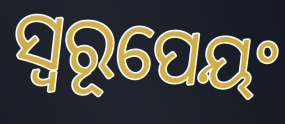
ସ୍ୱରୂପେୟଂ